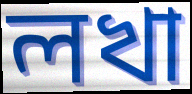
লখা